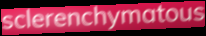
sclerenchymatous